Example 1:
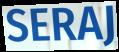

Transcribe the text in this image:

SERAJ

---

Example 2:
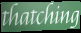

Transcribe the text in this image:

thatching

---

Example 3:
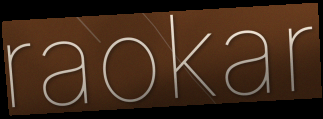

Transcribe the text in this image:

raokar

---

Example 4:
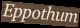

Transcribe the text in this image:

Eppothum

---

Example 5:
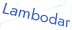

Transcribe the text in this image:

Lambodar